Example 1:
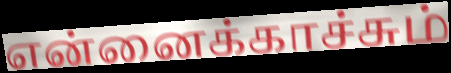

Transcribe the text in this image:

என்னைக்காச்சும்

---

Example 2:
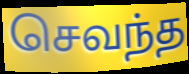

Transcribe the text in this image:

செவந்த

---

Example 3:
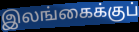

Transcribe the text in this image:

இலங்கைக்குப்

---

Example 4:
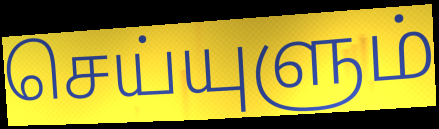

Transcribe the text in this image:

செய்யுளும்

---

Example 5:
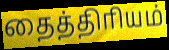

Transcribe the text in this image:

தைத்திரியம்